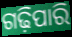
ଗଢ଼ିପାରି